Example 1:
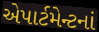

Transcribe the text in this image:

એપાર્ટમેન્ટનાં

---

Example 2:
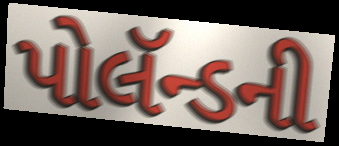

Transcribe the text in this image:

પોલૅન્ડની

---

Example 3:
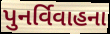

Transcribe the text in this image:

પુનર્વિવાહના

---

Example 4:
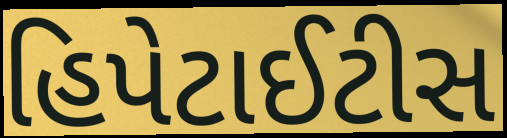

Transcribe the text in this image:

હિપેટાઈટીસ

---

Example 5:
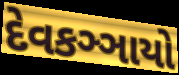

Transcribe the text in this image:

દેવકઞ્ઞાયો